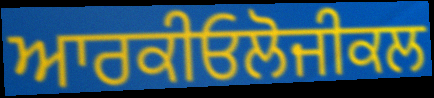
ਆਰਕੀਓਲੋਜੀਕਲ